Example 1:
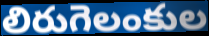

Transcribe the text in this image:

లిరుగెలంకుల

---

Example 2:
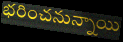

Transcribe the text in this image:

భరించనున్నాయి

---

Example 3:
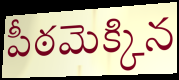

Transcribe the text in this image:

పీఠమెక్కిన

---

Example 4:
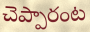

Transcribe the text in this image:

చెప్పారంట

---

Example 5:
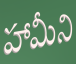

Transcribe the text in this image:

హామీని